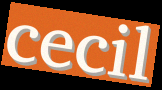
cecil